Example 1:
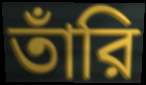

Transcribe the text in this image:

তাঁরি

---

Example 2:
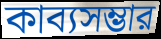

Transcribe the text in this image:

কাব্যসম্ভার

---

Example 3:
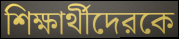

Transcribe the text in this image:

শিক্ষার্থীদেরকে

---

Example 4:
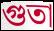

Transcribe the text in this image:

গুতা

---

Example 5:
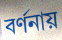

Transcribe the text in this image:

বর্ণনায়